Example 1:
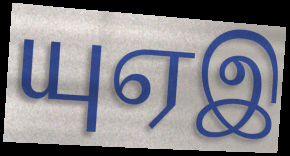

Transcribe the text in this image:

யுஏஇ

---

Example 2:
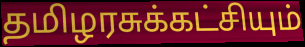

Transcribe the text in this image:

தமிழரசுக்கட்சியும்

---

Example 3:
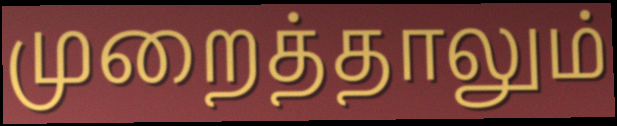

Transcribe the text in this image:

முறைத்தாலும்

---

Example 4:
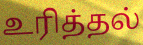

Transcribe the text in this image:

உரித்தல்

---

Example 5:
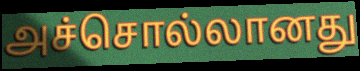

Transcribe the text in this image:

அச்சொல்லானது